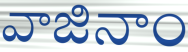
వాజినాం